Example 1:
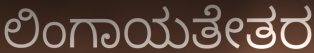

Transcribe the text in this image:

ಲಿಂಗಾಯತೇತರ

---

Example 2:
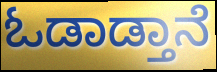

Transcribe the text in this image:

ಓಡಾಡ್ತಾನೆ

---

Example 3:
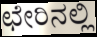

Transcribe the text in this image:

ಛೇರಿನಲ್ಲಿ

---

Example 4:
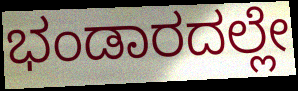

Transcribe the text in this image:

ಭಂಡಾರದಲ್ಲೇ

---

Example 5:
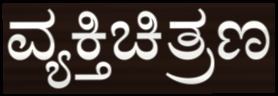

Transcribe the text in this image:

ವ್ಯಕ್ತಿಚಿತ್ರಣ